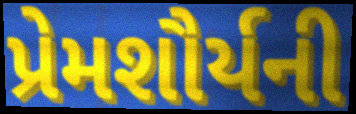
પ્રેમશૌર્યની